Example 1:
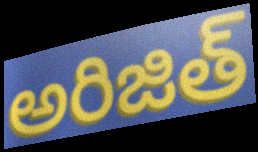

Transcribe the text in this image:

అరిజిత్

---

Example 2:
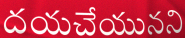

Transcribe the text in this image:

దయచేయునని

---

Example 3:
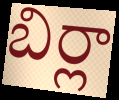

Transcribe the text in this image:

బిర్లా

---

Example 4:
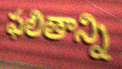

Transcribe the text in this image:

ఫలితాన్ని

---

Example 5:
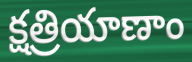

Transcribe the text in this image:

క్షత్రియాణాం